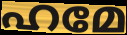
ഹമേ